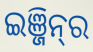
ଇଞ୍ଜିନ୍‌ର